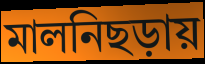
মালনিছড়ায়